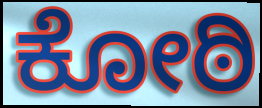
ಕೋಠಿ